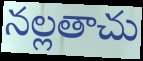
నల్లతాచు